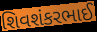
શિવશંકરભાઈ